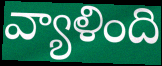
వ్యాళింది